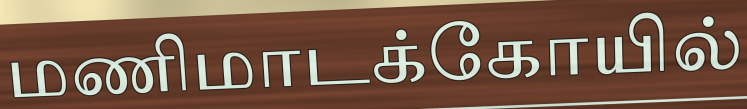
மணிமாடக்கோயில்